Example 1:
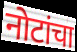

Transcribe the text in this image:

नोटांचा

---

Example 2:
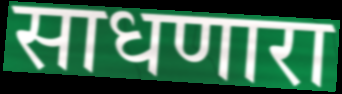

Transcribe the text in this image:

साधणारा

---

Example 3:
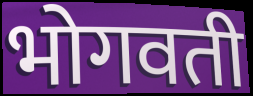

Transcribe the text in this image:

भोगवती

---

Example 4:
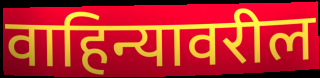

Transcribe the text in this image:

वाहिन्यावरील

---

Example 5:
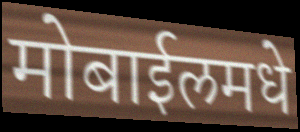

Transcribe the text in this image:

मोबाईलमधे